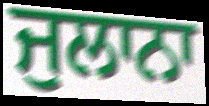
ਜੁਲਾਨਾ